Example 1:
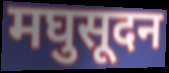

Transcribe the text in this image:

मघुसूदन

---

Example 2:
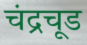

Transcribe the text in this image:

चंद्रचूड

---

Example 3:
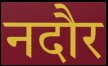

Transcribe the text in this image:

नदौर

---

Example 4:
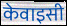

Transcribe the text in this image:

केवाइसी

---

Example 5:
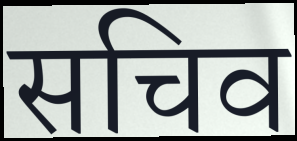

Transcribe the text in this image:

सचिव